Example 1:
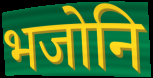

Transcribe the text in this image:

भजोनि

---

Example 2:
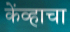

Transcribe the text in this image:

केंव्हाचा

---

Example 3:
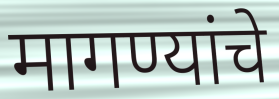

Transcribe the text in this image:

मागण्यांचे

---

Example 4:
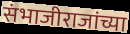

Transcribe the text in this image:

संभाजीराजांच्या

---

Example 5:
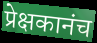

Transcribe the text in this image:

प्रेक्षकानंच